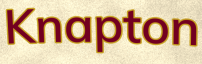
Knapton